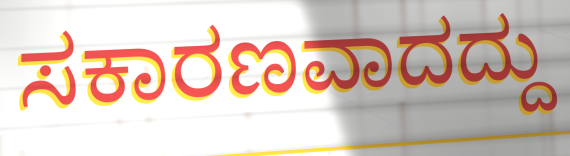
ಸಕಾರಣವಾದದ್ದು